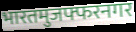
भारतमुजफ्फरनगर